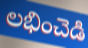
లభించెడి